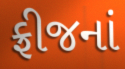
ફ્રીજનાં